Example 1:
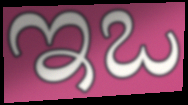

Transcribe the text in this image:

ಇಒ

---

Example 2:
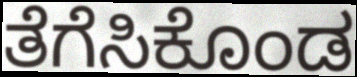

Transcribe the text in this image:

ತೆಗೆಸಿಕೊಂಡ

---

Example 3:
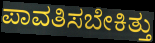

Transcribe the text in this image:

ಪಾವತಿಸಬೇಕಿತ್ತು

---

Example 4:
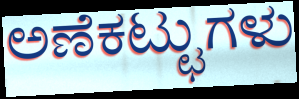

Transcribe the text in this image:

ಅಣೆಕಟ್ಟುಗಳು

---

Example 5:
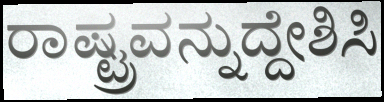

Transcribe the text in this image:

ರಾಷ್ಟ್ರವನ್ನುದ್ದೇಶಿಸಿ